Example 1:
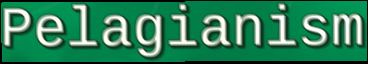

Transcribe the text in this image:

Pelagianism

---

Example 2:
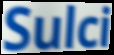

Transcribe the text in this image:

Sulci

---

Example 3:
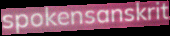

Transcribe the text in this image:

spokensanskrit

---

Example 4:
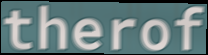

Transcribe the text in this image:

therof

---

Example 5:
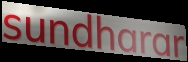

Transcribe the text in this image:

sundharar